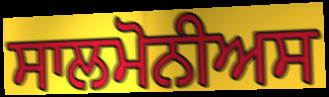
ਸਾਲਮੋਨੀਅਸ